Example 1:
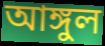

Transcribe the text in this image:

আঙ্গুল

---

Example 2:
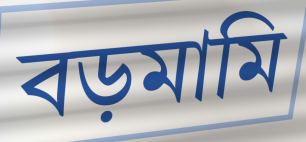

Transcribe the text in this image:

বড়মামি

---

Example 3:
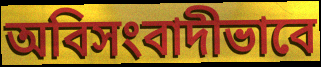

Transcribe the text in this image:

অবিসংবাদীভাবে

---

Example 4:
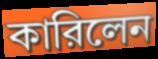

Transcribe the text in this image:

কারিলেন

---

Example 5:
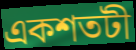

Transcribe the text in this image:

একশতটী